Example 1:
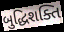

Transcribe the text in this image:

બુદ્ધિશક્તિ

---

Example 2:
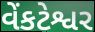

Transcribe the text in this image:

વેંકટેશ્વર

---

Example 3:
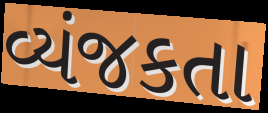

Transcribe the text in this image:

વ્યંજકતા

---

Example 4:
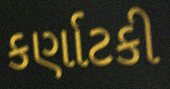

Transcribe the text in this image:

કર્ણાટકી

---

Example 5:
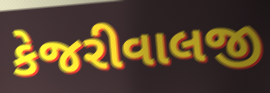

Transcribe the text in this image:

કેજરીવાલજી